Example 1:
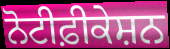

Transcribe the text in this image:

ਨੋਟੀਫ਼ੀਕੇਸ਼ਨ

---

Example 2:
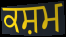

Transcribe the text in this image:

ਕਸ਼ਮ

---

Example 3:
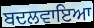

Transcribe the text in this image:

ਬਦਲਵਾਇਆ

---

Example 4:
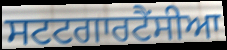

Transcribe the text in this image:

ਸਟਟਗਾਰਟੈਂਸੀਆ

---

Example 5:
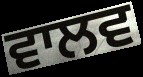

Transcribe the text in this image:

ਵਾਲਵ